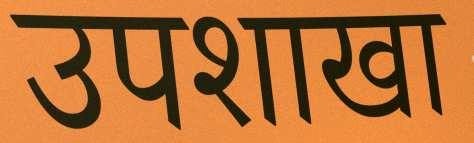
उपशाखा